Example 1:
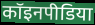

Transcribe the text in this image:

कॉइनपीडिया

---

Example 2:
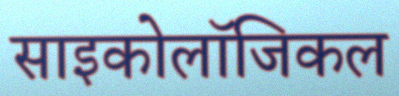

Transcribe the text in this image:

साइकोलॉजिकल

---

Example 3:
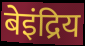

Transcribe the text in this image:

बेइंद्रिय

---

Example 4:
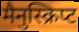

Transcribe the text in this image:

मैनुस्क्रिप्ट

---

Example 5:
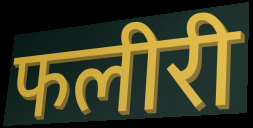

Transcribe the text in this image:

फलीरी